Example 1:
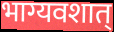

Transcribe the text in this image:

भाग्यवशात्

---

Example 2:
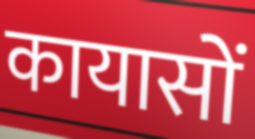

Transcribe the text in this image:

कायासों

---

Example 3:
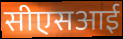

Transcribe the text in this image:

सीएसआई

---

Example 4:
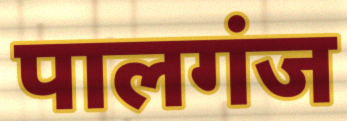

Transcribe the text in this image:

पालगंज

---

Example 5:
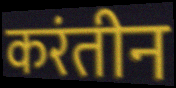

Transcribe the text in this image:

करंतीन